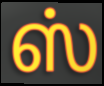
ஸ்